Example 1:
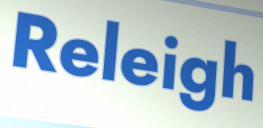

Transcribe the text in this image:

Releigh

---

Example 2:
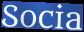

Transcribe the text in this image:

Socia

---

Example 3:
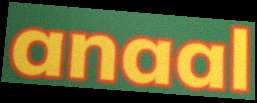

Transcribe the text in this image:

anaal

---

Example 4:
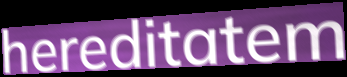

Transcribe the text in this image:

hereditatem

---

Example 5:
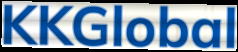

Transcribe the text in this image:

KKGlobal